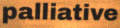
palliative